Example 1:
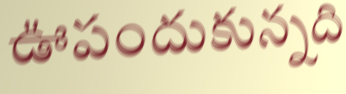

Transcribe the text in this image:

ఊపందుకున్నది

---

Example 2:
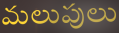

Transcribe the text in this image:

మలుపులు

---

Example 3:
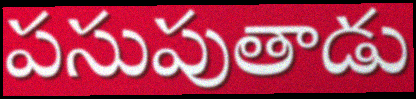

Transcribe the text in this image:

పసుపుతాడు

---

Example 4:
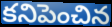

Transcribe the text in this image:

కనిపెంచిన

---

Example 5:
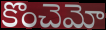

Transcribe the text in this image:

కొంచెమో